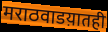
मराठवाडय़ातही